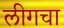
लीगचा